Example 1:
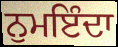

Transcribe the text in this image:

ਨੁਮਇੰਦਾ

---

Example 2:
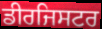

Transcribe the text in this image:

ਡੀਰਜਿਸਟਰ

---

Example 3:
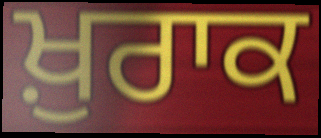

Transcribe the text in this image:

ਖ਼ੁਰਾਕ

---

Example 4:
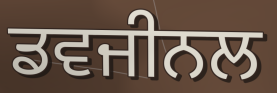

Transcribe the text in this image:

ਡਵਜੀਨਲ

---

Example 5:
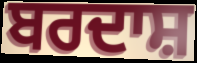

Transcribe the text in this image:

ਬਰਦਾਸ਼